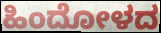
ಹಿಂದೋಳದ